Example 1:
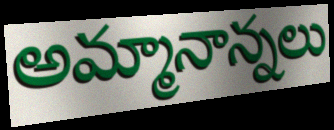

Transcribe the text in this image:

అమ్మానాన్నలు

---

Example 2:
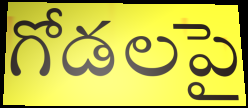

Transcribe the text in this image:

గోడలపై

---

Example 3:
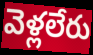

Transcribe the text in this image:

వెళ్లలేరు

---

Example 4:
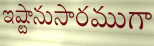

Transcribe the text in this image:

ఇష్టానుసారముగా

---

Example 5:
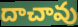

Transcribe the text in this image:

దాచావు